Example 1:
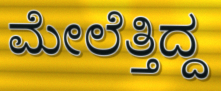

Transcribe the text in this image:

ಮೇಲೆತ್ತಿದ್ದ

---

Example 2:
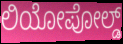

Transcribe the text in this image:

ಲಿಯೋಪೋಲ್ಡ್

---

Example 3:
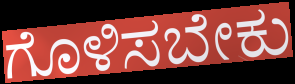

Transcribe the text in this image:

ಗೊಳಿಸಬೇಕು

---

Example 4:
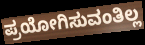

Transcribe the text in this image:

ಪ್ರಯೋಗಿಸುವಂತಿಲ್ಲ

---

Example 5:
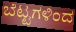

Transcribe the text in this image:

ಬೆಟ್ಟಗಳಿಂದ